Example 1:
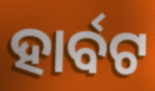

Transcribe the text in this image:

ହାର୍ବଟ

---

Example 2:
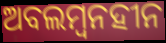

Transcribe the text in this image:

ଅବଲମ୍ବନହୀନ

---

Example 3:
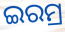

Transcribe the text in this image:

ଇରମ୍ର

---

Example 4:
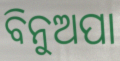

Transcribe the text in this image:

ବିନୁଅପା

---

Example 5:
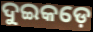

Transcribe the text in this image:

ଦୁଇକଡ଼େ